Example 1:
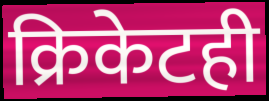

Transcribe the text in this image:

क्रिकेटही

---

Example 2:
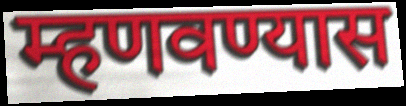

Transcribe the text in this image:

म्हणवण्यास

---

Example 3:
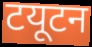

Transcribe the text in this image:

टयूटन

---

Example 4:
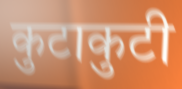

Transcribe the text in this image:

कुटाकुटी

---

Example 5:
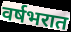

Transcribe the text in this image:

वर्षभरात